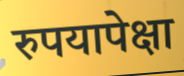
रुपयापेक्षा